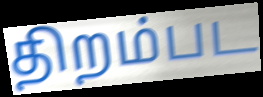
திறம்பட